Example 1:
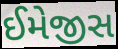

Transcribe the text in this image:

ઈમેજીસ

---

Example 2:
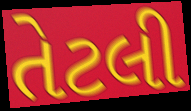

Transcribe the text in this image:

તેટલી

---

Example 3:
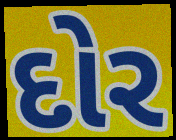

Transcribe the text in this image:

દોર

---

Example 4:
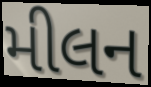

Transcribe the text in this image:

મીલન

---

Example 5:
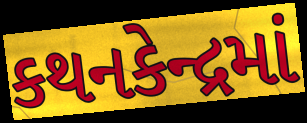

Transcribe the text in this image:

કથનકેન્દ્રમાં